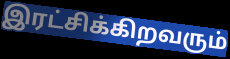
இரட்சிக்கிறவரும்